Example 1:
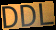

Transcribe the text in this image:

DDL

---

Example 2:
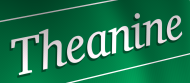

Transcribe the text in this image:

Theanine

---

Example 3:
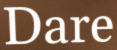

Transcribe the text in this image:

Dare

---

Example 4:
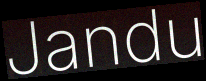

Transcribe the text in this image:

Jandu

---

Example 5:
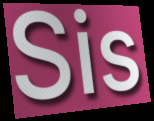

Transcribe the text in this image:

Sis